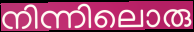
നിന്നിലൊരു